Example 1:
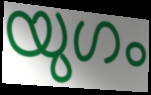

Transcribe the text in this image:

യുഗം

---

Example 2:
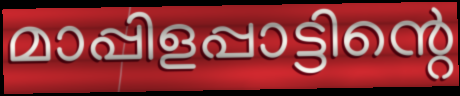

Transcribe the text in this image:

മാപ്പിളപ്പാട്ടിന്റെ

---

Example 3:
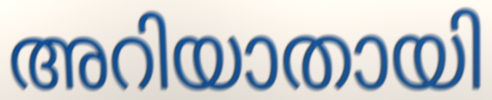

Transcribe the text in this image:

അറിയാതായി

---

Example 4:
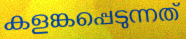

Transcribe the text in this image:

കളങ്കപ്പെടുന്നത്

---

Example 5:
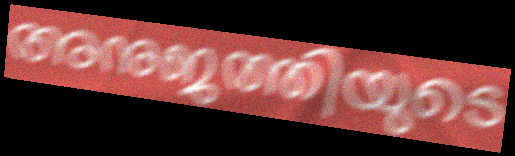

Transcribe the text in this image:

അനുജത്തിയുടെ